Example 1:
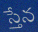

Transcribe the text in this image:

స్తేన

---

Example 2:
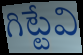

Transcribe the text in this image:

గిట్టేవి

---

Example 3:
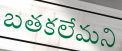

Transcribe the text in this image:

బతకలేమని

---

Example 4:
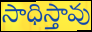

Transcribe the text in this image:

సాధిస్తావు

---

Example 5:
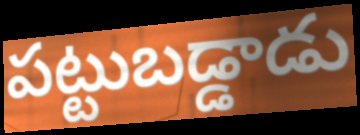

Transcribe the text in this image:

పట్టుబడ్డాడు